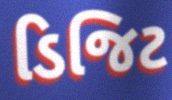
ડિજિટ